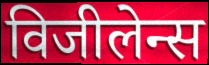
विजीलेन्स